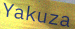
Yakuza